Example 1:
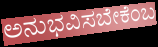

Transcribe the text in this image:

ಅನುಭವಿಸಬೇಕೆಂಬ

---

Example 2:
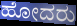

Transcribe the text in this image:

ಹೋದರು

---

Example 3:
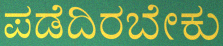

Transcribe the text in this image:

ಪಡೆದಿರಬೇಕು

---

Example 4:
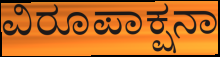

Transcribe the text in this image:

ವಿರೂಪಾಕ್ಷನಾ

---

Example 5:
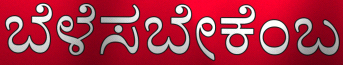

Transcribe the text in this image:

ಬೆಳೆಸಬೇಕೆಂಬ